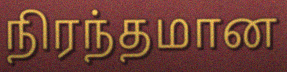
நிரந்தமான